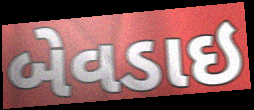
બેવડાઇ